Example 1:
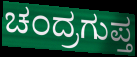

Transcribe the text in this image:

ಚಂದ್ರಗುಪ್ತ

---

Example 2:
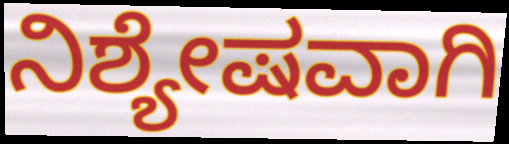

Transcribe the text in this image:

ನಿಶ್ಯೇಷವಾಗಿ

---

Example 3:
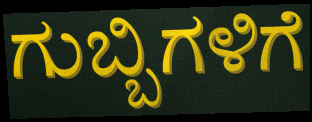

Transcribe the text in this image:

ಗುಬ್ಬಿಗಳಿಗೆ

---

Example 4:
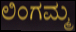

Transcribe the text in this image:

ಲಿಂಗಮ್ಮ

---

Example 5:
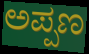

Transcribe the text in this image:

ಅಪ್ಪಣ